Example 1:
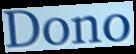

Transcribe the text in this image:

Dono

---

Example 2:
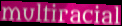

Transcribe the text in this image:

multiracial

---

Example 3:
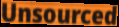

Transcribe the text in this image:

Unsourced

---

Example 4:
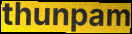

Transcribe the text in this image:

thunpam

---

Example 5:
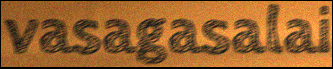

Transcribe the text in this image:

vasagasalai